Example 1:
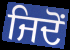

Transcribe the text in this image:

ਜਿਦੋਂ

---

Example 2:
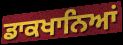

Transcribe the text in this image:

ਡਾਕਖਾਨਿਆਂ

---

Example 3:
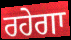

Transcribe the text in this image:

ਰਹੇਗਾ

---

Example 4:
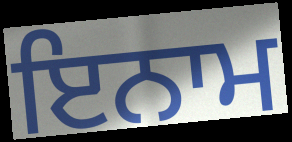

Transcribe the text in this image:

ਇਨਾਮ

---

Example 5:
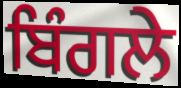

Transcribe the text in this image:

ਬਿੰਗਲੇ